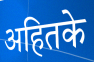
अहितके